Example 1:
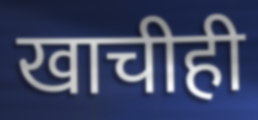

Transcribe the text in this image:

खाचीही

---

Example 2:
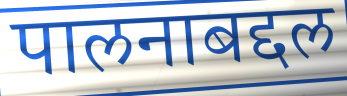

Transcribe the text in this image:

पालनाबद्दल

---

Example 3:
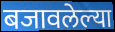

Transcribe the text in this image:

बजावलेल्या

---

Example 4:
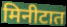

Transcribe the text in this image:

मिनीटात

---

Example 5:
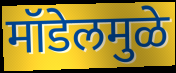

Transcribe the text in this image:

मॉडेलमुळे